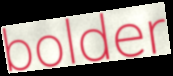
bolder